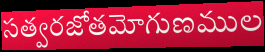
సత్వరజోతమోగుణముల